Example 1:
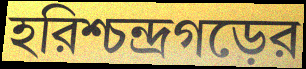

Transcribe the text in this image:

হরিশ্চন্দ্রগড়ের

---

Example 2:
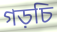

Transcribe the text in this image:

গড়চি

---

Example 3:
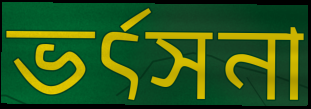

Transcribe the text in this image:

ভর্ৎসনা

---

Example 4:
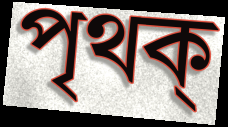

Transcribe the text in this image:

পৃথক্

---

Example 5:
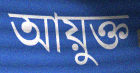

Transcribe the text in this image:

আয়ুক্ত